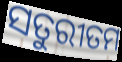
ସତୁରୀତମ